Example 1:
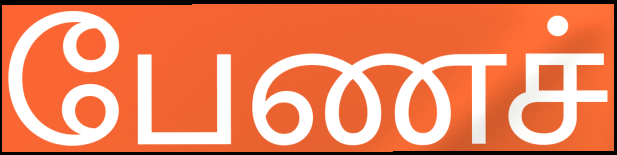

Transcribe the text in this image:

பேணச்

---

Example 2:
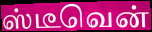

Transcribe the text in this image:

ஸ்டீவென்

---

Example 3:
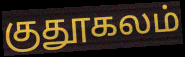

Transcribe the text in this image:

குதூகலம்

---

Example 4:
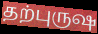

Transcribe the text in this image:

தற்புருஷ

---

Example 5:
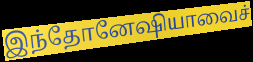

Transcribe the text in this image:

இந்தோனேஷியாவைச்